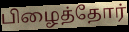
பிழைத்தோர்